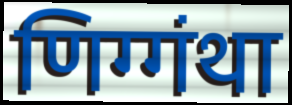
णिग्गंथा